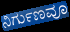
ನಿರ್ಗುಣವೂ